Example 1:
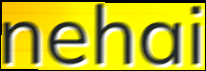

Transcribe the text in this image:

nehai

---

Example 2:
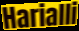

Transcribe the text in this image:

Harialli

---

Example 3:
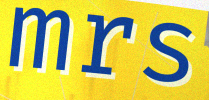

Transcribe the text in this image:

mrs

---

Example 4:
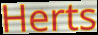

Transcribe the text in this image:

Herts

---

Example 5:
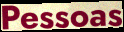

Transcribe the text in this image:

Pessoas